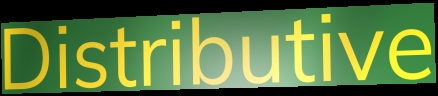
Distributive